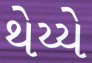
થેય્યે